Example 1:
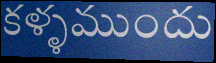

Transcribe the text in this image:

కళ్ళముందు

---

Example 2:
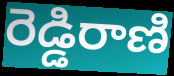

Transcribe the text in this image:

రెడ్డిరాణి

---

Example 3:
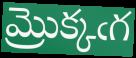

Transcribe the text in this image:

మ్రొక్కఁగ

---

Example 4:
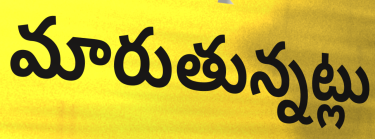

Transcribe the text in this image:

మారుతున్నట్లు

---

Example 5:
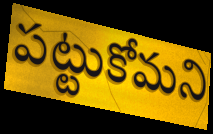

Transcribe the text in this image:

పట్టుకోమని